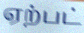
ஏற்பட்